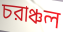
চরাঞ্চল